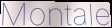
Montale